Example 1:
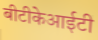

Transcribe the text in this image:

बीटीकेआईटी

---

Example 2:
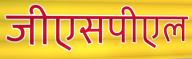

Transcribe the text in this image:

जीएसपीएल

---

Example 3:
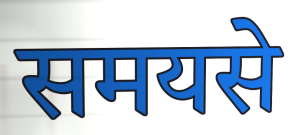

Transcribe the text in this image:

समयसे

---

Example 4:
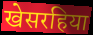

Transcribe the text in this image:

खेसरहिया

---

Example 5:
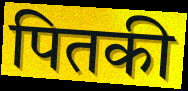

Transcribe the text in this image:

पितकी